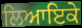
ਲਿਆਇਕੇ